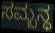
ಸಮ್ಬನ್ಧ